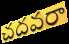
చదవరా